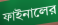
ফাইনালের